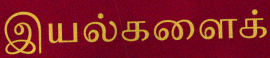
இயல்களைக்